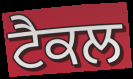
ਟੈਕਲ